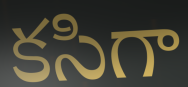
కసిగా